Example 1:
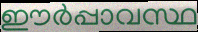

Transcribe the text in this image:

ഈർപ്പാവസ്ഥ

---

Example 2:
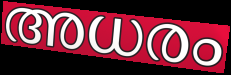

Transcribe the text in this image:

അധരം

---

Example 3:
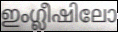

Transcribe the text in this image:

ഇംഗ്ലീഷിലോ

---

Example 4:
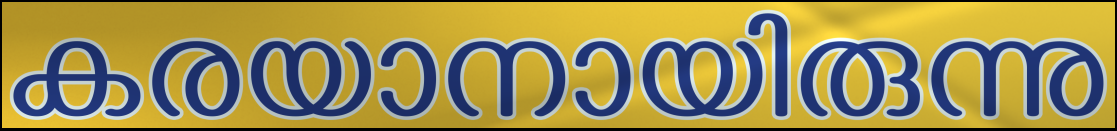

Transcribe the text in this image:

കരയാനായിരുന്നു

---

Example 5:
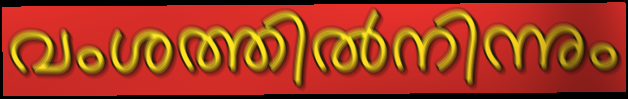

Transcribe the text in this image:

വംശത്തിൽനിന്നും